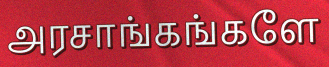
அரசாங்கங்களே